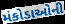
મંકોડાઓની